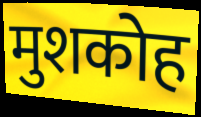
मुशकोह